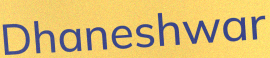
Dhaneshwar